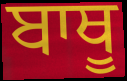
ਬਾਥੂ